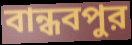
বান্ধবপুর